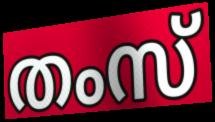
തംസ്